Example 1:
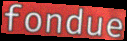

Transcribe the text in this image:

fondue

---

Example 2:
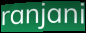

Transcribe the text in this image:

ranjani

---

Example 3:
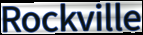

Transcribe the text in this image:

Rockville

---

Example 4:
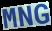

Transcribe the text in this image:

MNG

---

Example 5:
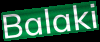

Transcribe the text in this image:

Balaki